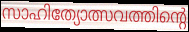
സാഹിത്യോത്സവത്തിന്റെ